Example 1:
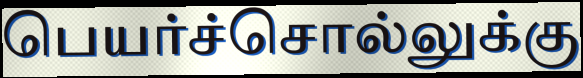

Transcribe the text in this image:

பெயர்ச்சொல்லுக்கு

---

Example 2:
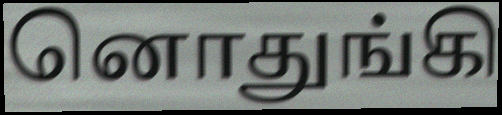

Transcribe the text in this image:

னொதுங்கி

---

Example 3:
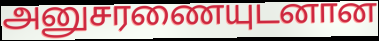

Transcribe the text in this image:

அனுசரணையுடனான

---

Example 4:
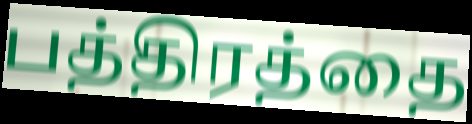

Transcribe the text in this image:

பத்திரத்தை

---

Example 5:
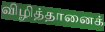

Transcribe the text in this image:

விழித்தானைக்